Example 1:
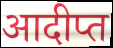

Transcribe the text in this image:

आदीप्त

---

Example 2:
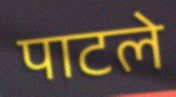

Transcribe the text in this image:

पाटले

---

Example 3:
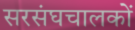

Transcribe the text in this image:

सरसंघचालकों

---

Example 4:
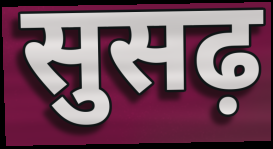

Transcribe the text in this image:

सुसढ़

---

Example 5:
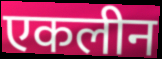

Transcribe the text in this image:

एकलीन